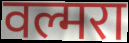
वल्मरा